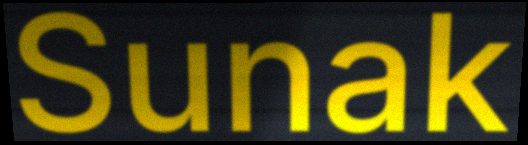
Sunak